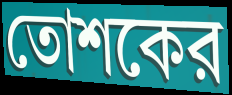
তোশকের